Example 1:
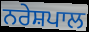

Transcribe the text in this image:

ਨਰੇਸ਼ਪਾਲ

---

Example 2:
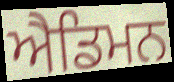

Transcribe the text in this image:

ਐਡਿਮਨ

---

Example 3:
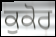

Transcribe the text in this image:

ਕੁਕੋਰ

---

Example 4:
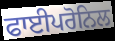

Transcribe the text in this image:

ਫਾਈਪਰੋਨਿਲ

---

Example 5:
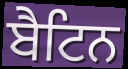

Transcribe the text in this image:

ਬੈਟਿਨ